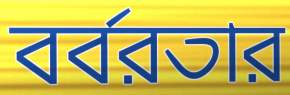
বর্বরতার